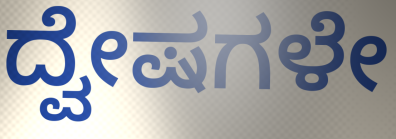
ದ್ವೇಷಗಳೇ